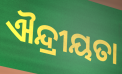
ଐନ୍ଦ୍ରୀୟତା